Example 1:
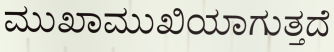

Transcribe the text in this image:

ಮುಖಾಮುಖಿಯಾಗುತ್ತದೆ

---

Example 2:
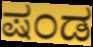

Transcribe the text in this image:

ಷಂಡ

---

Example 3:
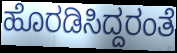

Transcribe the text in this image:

ಹೊರಡಿಸಿದ್ದರಂತೆ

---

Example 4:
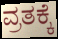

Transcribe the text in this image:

ವ್ರತಕ್ಕೆ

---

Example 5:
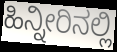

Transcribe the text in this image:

ಹಿನ್ನೀರಿನಲ್ಲಿ